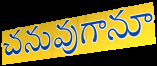
చనువుగానూ